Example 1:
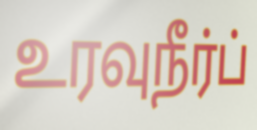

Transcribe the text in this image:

உரவுநீர்ப்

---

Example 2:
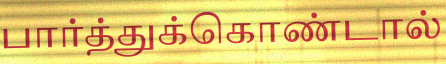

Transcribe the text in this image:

பார்த்துக்கொண்டால்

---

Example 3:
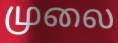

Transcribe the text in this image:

முலை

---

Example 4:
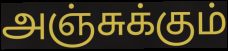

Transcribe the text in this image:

அஞ்சுக்கும்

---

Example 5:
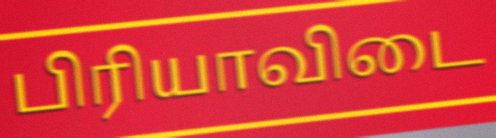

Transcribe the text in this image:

பிரியாவிடை